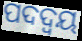
ପଦଦ୍ଵୟ